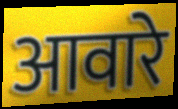
आवारे